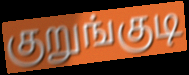
குறுங்குடி